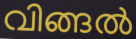
വിങ്ങൽ